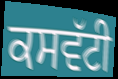
ਕਸਵੱਟੀ